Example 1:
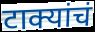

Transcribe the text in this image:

टाक्यांचं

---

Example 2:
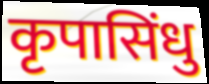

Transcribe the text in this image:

कृपासिंधु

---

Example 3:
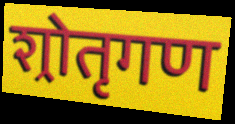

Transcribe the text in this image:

श्रोतृगण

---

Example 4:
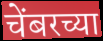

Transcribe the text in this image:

चेंबरच्या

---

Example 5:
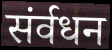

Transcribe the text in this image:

संर्वधन